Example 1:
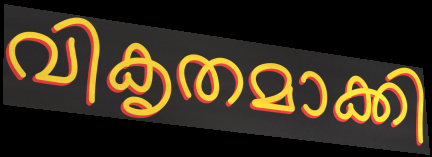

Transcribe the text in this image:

വികൃതമാക്കി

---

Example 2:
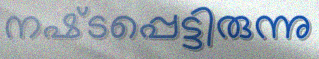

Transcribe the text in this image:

നഷ്‌ടപ്പെട്ടിരുന്നു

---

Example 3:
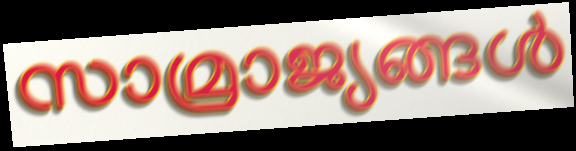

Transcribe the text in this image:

സാമ്രാജ്യങ്ങൾ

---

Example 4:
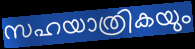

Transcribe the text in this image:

സഹയാത്രികയും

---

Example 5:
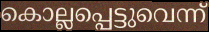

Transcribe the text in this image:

കൊല്ലപ്പെട്ടുവെന്ന്